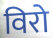
विरो